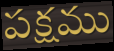
పక్షము